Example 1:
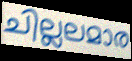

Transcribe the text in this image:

ചില്ലലമാര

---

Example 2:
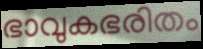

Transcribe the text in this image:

ഭാവുകഭരിതം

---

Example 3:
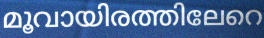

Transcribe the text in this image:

മൂവായിരത്തിലേറെ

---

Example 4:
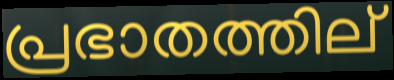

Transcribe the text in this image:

പ്രഭാതത്തില്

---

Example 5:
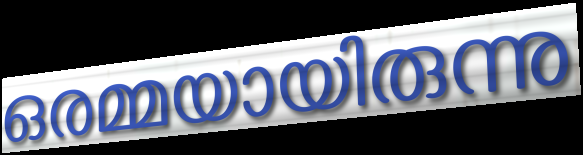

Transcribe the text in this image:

ഒരമ്മയായിരുന്നു